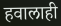
हवालाही